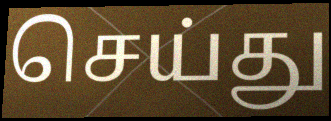
செய்து